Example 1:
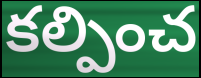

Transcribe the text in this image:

కల్పించ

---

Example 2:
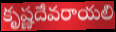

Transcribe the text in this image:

కృష్ణదేవరాయలి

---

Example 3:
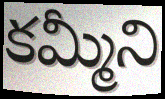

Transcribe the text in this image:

కమ్మీని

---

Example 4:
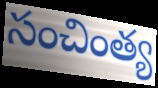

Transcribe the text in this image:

సంచింత్య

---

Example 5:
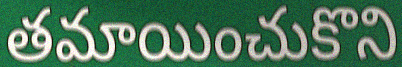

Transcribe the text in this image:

తమాయించుకొని